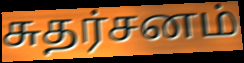
சுதர்சனம்